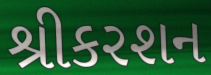
શ્રીકરશન